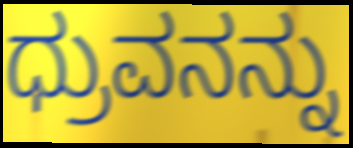
ಧ್ರುವನನ್ನು